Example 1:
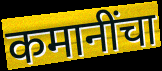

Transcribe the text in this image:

कमानींचा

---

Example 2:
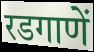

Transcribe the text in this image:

रडगाणें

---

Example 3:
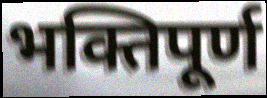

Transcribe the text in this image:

भक्तिपूर्ण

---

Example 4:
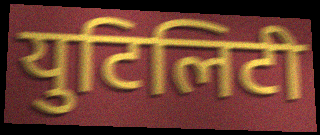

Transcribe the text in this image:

युटिलिटी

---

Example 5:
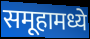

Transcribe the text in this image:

समूहामध्ये